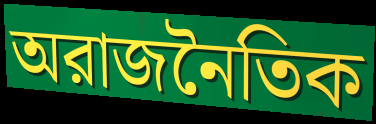
অরাজনৈতিক